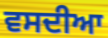
ਵਸਦੀਆ